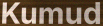
Kumud